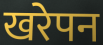
खरेपन